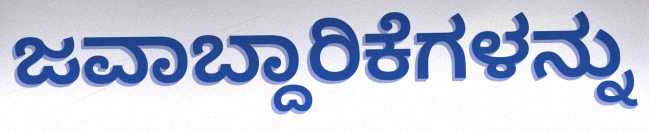
ಜವಾಬ್ದಾರಿಕೆಗಳನ್ನು